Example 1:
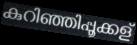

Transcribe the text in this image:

കുറിഞ്ഞിപ്പൂക്കള്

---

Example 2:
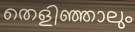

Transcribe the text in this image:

തെളിഞ്ഞാലും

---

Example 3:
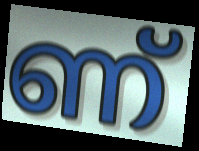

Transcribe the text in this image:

ണ്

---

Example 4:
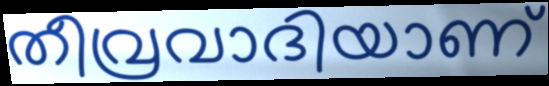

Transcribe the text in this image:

തീവ്രവാദിയാണ്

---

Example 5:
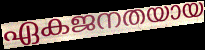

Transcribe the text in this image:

ഏകജനതയായ